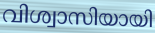
വിശ്വാസിയായി